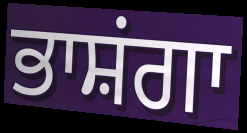
ਭਾਸ਼ਂਗਾ